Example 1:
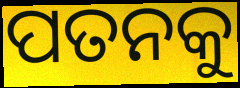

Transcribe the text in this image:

ପତନକୁ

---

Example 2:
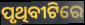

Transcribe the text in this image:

ପୃଥିବୀଟିରେ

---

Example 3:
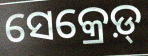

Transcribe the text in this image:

ସେକ୍ରେଡ଼୍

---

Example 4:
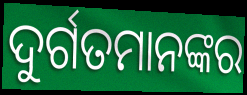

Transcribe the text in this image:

ଦୁର୍ଗତମାନଙ୍କର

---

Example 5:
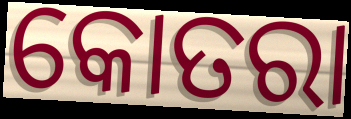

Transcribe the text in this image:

କୋତରା